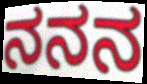
ನನನ